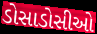
ડોસાડોસીઓ